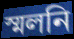
স্মলনি